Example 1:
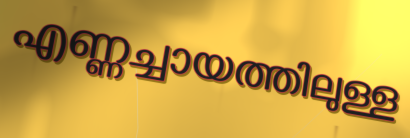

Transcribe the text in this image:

എണ്ണച്ചായത്തിലുള്ള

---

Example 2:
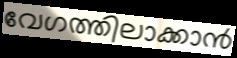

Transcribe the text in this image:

വേഗത്തിലാക്കാൻ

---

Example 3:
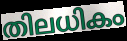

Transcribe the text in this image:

തിലധികം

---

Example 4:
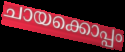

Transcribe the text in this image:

ചായക്കൊപ്പം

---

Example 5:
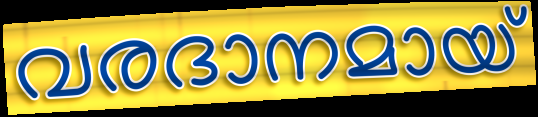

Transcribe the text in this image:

വരദാനമായ്